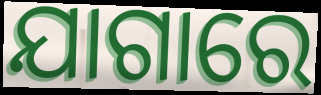
ଯାଗାରେ